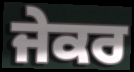
ਜੇਕਰ